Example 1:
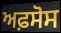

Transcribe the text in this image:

ਅਫ਼ਸੋਸ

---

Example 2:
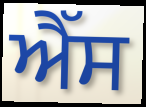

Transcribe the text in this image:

ਐੱਸ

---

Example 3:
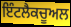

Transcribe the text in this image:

ਇੰਟਲੈਕਚੂਅਲ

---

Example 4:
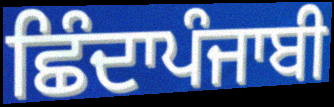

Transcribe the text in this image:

ਛਿੰਦਾਪੰਜਾਬੀ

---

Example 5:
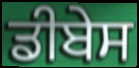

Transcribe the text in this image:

ਡੀਬੇਸ